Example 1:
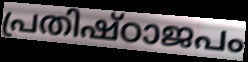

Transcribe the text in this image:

പ്രതിഷ്ഠാജപം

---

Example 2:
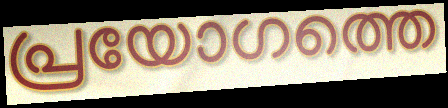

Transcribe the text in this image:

പ്രയോഗത്തെ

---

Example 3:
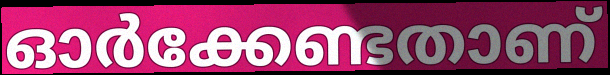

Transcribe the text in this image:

ഓർക്കേണ്ടതാണ്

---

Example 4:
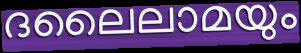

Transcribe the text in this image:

ദലൈലാമയും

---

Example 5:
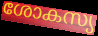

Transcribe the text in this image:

ശോകസ്യ